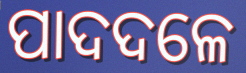
ପାଦଦଳେ